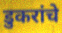
डुकरांचे